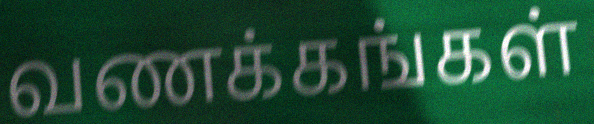
வணக்கங்கள்